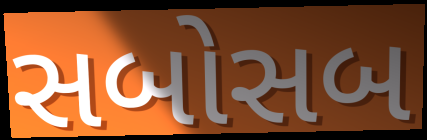
સબોસબ